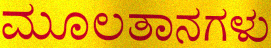
ಮೂಲತಾನಗಳು